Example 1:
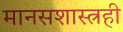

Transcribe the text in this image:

मानसशास्त्रही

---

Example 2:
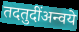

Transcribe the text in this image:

तदतुदींअन्वये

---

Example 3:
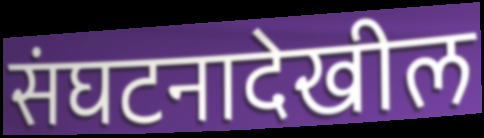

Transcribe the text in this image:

संघटनादेखील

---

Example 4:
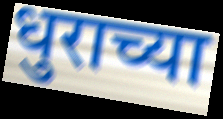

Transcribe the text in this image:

धुराच्या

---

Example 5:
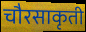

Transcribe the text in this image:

चौरसाकृती